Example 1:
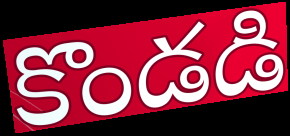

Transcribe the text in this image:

కొండడి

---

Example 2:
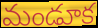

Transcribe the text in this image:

మండూక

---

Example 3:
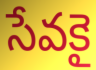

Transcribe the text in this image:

సేవకై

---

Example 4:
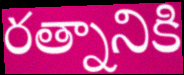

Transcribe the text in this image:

రత్నానికి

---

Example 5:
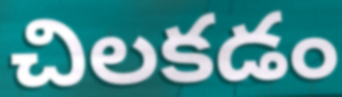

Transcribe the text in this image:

చిలకడం